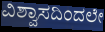
ವಿಶ್ವಾಸದಿಂದಲೇ